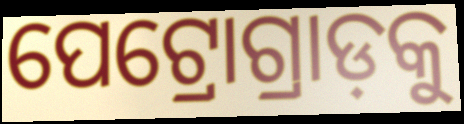
ପେଟ୍ରୋଗ୍ରାଡ଼କୁ